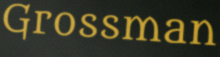
Grossman